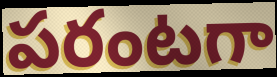
పరంటగా